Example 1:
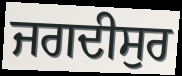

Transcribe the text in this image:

ਜਗਦੀਸੁਰ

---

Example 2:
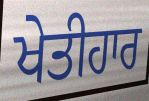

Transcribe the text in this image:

ਖੇਤੀਹਾਰ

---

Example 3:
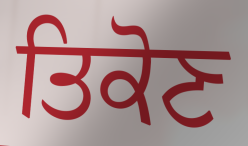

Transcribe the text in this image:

ਤਿਕੋਣ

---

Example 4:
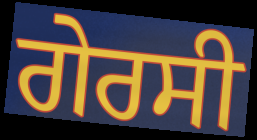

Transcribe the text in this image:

ਗੇਰਸੀ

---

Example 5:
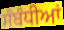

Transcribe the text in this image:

ਸੰਬੰਧੀਆਂ